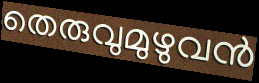
തെരുവുമുഴുവൻ